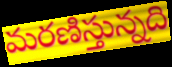
మరణిస్తున్నది